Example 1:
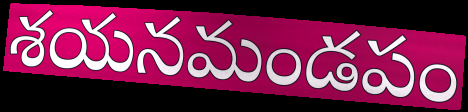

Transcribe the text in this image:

శయనమండపం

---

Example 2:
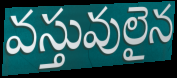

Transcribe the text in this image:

వస్తువులైన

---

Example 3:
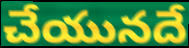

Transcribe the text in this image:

చేయునదే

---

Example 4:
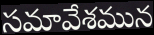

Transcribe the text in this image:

సమావేశమున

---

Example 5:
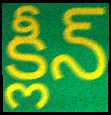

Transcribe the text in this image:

క్లీన్